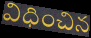
విధించిన